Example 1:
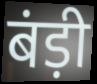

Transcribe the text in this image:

बंड़ी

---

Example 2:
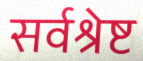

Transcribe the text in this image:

सर्वश्रेष्ट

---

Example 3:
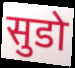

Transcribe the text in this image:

सुडो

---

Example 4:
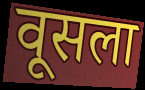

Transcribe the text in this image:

वूसला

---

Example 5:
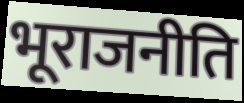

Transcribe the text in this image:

भूराजनीति